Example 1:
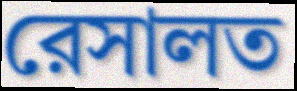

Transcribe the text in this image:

রেসালত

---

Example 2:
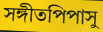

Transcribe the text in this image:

সঙ্গীতপিপাসু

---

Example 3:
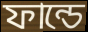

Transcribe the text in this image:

ফান্ডে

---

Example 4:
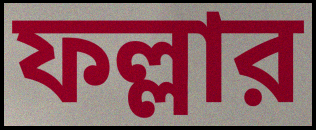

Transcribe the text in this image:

ফল্লার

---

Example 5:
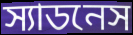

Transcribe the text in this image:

স্যাডনেস